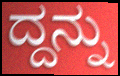
ದ್ದನ್ನು